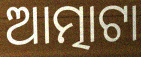
ଆତ୍ମାଟା